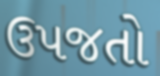
ઉપજતો